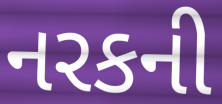
નરકની